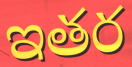
ఇతర